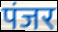
पंजर